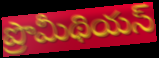
ప్రొమీథియస్